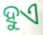
ହୁଏ